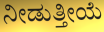
ನೀಡುತ್ತೀಯೆ